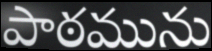
పాఠమును